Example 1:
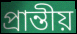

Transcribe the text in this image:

প্রান্তীয়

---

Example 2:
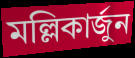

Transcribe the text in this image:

মল্লিকার্জুন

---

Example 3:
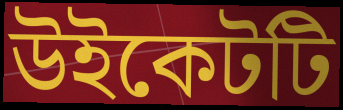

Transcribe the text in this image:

উইকেটটি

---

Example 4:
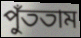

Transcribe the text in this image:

পুঁততাম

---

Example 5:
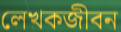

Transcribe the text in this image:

লেখকজীবন